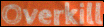
Overkill